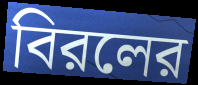
বিরলের